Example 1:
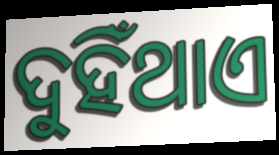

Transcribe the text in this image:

ଦୁହିଁଥାଏ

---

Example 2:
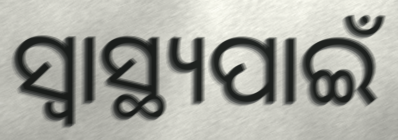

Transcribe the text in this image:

ସ୍ବାସ୍ଥ୍ୟପାଇଁ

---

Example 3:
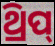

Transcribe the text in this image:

ଥ୍ରିପ୍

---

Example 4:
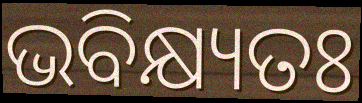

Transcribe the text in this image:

ଭବିକ୍ଷ୍ୟତଃ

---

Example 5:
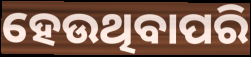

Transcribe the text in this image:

ହେଉଥିବାପରି